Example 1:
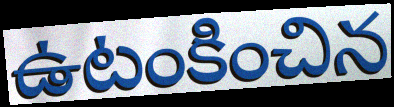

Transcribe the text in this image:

ఉటంకించిన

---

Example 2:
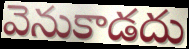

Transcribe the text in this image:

వెనుకాడదు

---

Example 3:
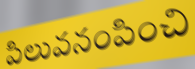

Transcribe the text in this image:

పిలువనంపించి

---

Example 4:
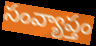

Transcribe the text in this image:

సంవ్యాప్తం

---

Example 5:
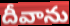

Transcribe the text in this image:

దీవాను